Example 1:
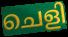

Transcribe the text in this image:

ചെളി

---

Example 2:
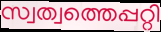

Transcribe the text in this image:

സ്വത്വത്തെപ്പറ്റി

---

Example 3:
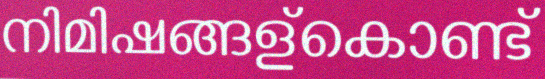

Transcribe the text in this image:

നിമിഷങ്ങള്കൊണ്ട്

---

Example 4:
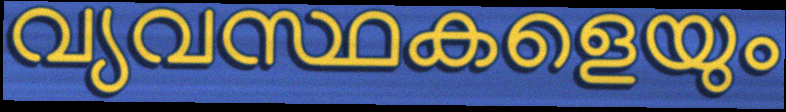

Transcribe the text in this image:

വ്യവസ്ഥകളെയും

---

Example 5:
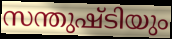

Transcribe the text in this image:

സന്തുഷ്ടിയും